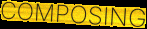
COMPOSING